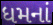
ધમનાં